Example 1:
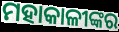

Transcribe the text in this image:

ମହାକାଳୀଙ୍କର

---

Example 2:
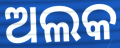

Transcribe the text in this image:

ଅଲକ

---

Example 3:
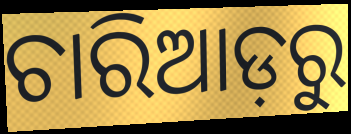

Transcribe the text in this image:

ଚାରିଆଡ଼ରୁ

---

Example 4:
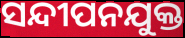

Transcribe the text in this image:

ସନ୍ଦୀପନଯୁକ୍ତ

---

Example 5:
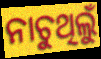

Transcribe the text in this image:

ନାଚୁଥିଲୁଁ